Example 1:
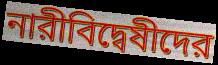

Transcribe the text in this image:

নারীবিদ্বেষীদের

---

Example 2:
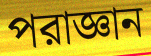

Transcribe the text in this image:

পরাজ্ঞান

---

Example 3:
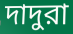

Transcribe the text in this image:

দাদুরা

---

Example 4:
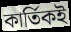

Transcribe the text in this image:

কার্তিকই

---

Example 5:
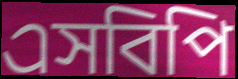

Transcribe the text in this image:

এসবিপি